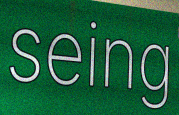
seing